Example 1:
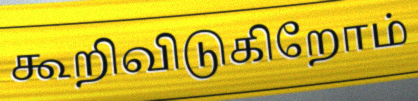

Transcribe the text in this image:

கூறிவிடுகிறோம்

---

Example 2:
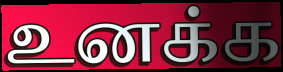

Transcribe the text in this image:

உனக்க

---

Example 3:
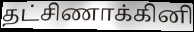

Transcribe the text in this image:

தட்சிணாக்கினி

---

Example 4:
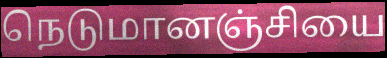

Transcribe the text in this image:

நெடுமானஞ்சியை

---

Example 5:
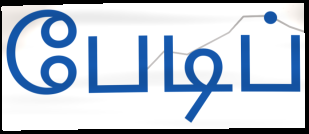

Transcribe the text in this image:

பேடிப்